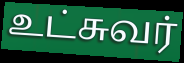
உட்சுவர்